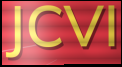
JCVI